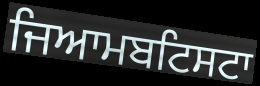
ਜਿਆਮਬਟਿਸਟਾ